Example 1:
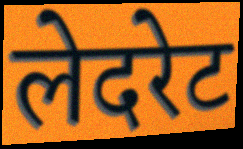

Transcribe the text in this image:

लेदरेट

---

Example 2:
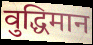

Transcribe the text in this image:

वुद्धिमान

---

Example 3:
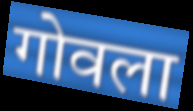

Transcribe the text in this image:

गोवला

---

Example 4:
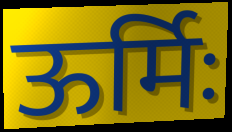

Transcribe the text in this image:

ऊर्मिः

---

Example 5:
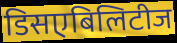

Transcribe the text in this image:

डिसएबिलिटीज